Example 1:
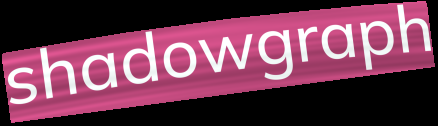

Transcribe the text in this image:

shadowgraph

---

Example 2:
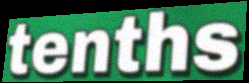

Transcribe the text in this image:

tenths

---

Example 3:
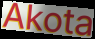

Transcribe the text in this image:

Akota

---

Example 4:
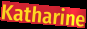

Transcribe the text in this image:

Katharine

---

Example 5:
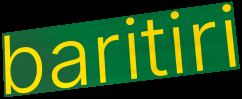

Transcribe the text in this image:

baritiri